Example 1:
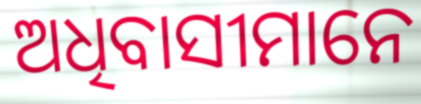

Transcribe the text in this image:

ଅଧିବାସୀମାନେ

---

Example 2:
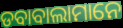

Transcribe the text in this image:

ଡବାବାଲାମାନେ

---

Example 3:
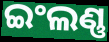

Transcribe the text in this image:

ଇଂଲଣ୍ଣ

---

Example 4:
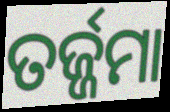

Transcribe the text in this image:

ତର୍ଜ୍ଜମା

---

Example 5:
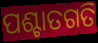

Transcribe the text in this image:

ପଶ୍ଚାତଗତି